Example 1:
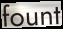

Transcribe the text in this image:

fount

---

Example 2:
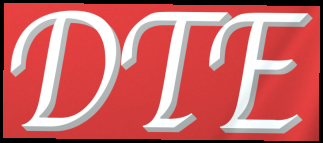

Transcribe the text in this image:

DTE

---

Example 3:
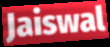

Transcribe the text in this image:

Jaiswal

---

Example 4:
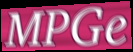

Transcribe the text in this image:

MPGe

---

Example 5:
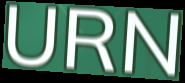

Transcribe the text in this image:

URN